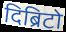
दिब्रिटो